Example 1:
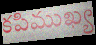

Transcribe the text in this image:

కపిముఖ్య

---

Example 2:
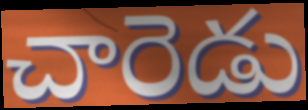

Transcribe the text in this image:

చారెడు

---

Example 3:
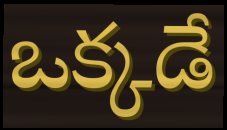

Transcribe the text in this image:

ఒక్కడే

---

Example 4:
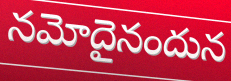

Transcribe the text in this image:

నమోదైనందున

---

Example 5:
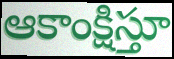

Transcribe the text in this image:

ఆకాంక్షిస్తూ